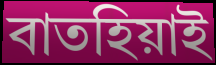
বাতহিয়াই